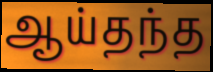
ஆய்தந்த